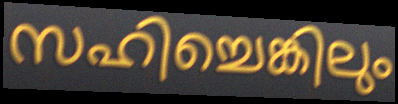
സഹിച്ചെങ്കിലും